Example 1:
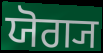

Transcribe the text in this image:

ਯੋਗ੍ਯ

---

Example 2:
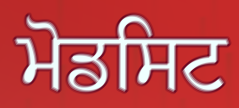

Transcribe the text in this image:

ਮੋਡਸਿਟ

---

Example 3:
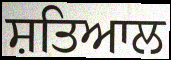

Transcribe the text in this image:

ਸ਼ਤਿਆਲ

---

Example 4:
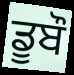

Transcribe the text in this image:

ਡੂਬੌ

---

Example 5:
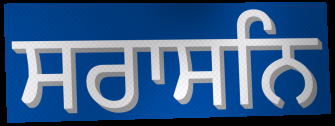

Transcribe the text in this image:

ਸਰਾਸਨਿ